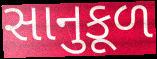
સાનુકૂળ